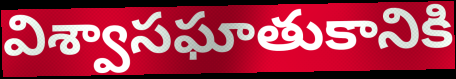
విశ్వాసఘాతుకానికి